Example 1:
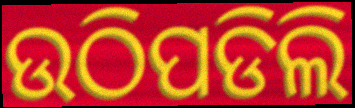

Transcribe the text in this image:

ଉଠିପଡିଲି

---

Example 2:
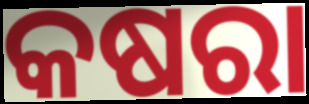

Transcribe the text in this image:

କଷରା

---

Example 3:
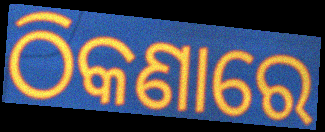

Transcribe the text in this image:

ଠିକଣାରେ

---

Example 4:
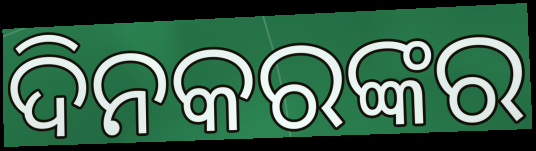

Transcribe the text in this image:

ଦିନକରଙ୍କର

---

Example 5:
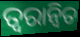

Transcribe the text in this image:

ତ୍ଵରାନ୍ବିତ